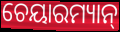
ଚେୟାରମ୍ୟାନ୍